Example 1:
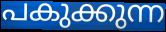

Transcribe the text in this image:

പകുക്കുന്ന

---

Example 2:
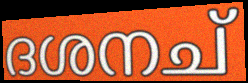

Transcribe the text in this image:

ദശനച്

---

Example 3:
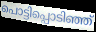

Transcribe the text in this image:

പൊട്ടിപ്പൊടിഞ്ഞ്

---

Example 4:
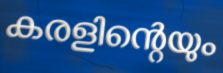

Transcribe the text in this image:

കരളിന്റെയും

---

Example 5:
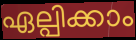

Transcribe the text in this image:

ഏല്പിക്കാം